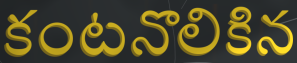
కంటనొలికిన